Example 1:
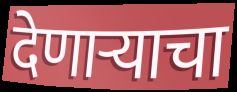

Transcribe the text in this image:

देणार्‍याचा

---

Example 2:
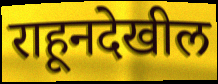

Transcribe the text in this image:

राहूनदेखील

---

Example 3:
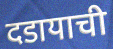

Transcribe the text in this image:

दडायाची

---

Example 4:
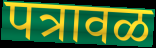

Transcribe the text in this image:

पत्रावळ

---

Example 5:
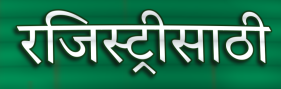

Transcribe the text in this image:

रजिस्ट्रीसाठी